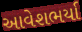
આવેશભર્યા